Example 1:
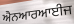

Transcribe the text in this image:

ਐਨਆਰਆਈਜ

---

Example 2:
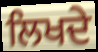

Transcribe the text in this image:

ਲਿਖਦੇ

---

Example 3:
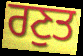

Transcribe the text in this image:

ਰਣੁਤ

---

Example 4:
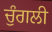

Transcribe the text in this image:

ਚੁੰਗਲੀ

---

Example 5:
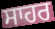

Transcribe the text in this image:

ਸਾਹਰ